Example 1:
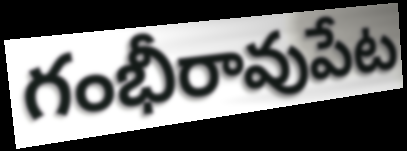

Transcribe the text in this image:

గంభీరావుపేట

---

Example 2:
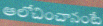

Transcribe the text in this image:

ఆలోచించానంటే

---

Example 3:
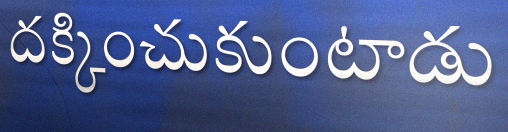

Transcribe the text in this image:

దక్కించుకుంటాడు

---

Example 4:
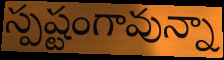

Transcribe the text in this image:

స్పష్టంగావున్నా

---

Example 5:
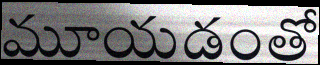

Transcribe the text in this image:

మూయడంతో